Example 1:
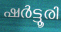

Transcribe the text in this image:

ഷർട്ടൂരി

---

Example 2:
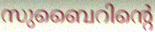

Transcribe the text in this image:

സുബൈറിന്റെ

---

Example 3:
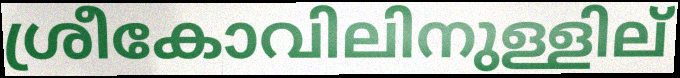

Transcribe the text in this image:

ശ്രീകോവിലിനുള്ളില്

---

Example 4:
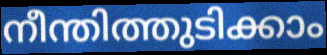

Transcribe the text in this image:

നീന്തിത്തുടിക്കാം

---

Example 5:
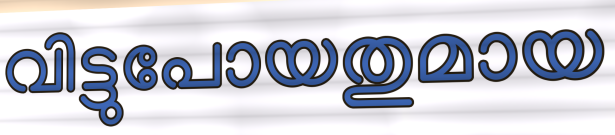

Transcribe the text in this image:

വിട്ടുപോയതുമായ